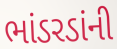
ભાંડરડાંની